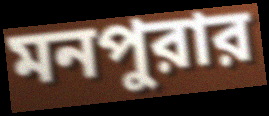
মনপুরার